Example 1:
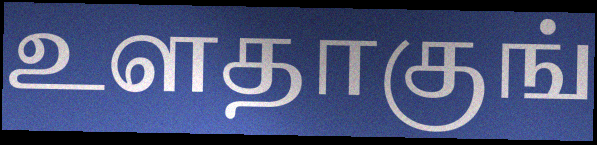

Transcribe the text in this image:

உளதாகுங்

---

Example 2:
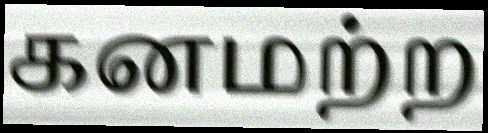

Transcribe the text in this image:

கனமற்ற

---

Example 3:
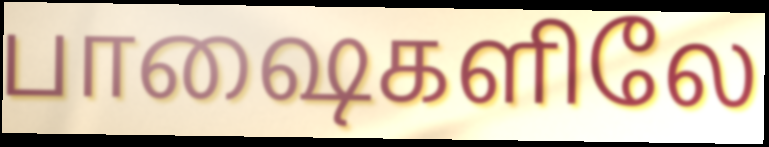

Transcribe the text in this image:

பாஷைகளிலே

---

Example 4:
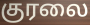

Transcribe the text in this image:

குரலை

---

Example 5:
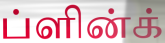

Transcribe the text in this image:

ப்ளின்க்